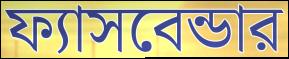
ফ্যাসবেন্ডার